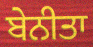
ਬੇਨੀਤਾ